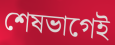
শেষভাগেই